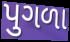
પુગળા